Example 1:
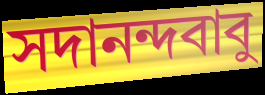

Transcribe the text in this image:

সদানন্দবাবু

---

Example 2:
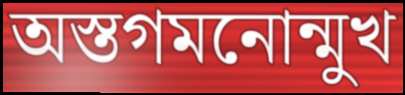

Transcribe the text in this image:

অস্তগমনোন্মুখ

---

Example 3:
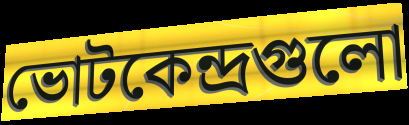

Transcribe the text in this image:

ভোটকেন্দ্রগুলো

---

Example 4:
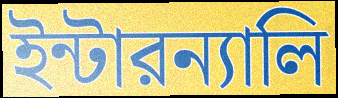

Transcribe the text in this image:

ইন্টারন্যালি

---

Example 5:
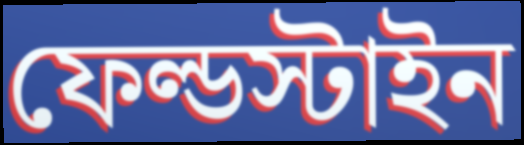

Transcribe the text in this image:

ফেল্ডস্টাইন